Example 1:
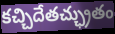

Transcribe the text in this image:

కచ్చిదేతచ్ఛ్రుతం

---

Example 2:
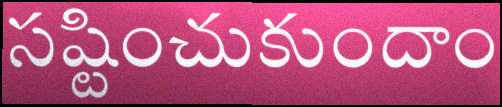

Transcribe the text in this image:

సష్టించుకుందాం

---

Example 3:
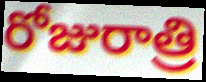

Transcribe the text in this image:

రోజురాత్రి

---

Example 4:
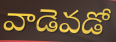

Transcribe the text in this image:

వాడెవడో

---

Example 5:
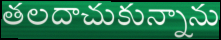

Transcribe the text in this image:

తలదాచుకున్నాను